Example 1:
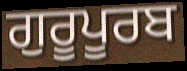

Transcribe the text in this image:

ਗੁਰੂਪੂਰਬ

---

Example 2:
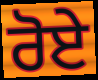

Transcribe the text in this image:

ਰੋਏ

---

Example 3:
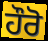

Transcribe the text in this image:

ਹੌਰੋ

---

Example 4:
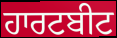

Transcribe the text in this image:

ਹਾਰਟਬੀਟ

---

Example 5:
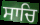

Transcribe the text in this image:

ਸਾਚਿ